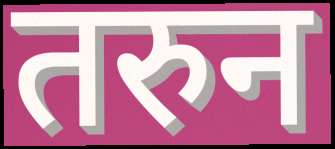
तरुन